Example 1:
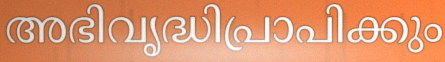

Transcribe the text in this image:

അഭിവൃദ്ധിപ്രാപിക്കും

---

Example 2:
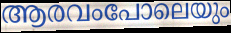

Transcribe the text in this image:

ആരവംപോലെയും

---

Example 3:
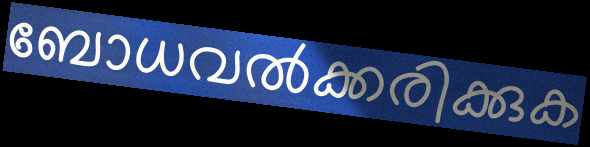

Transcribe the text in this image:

ബോധവൽക്കരിക്കുക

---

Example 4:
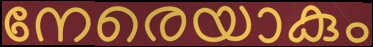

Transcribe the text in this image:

നേരെയാകും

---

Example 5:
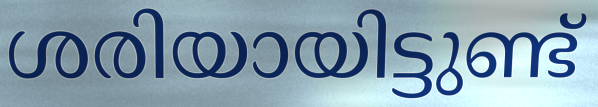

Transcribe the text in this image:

ശരിയായിട്ടുണ്ട്